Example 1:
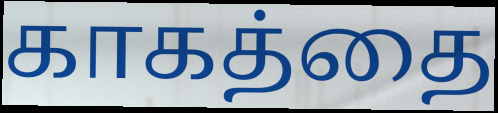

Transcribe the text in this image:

காகத்தை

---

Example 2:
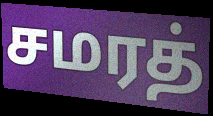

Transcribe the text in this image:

சமரத்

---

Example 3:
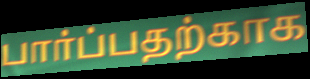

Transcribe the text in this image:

பார்ப்பதற்காக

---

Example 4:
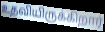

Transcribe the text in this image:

உதவியிருக்கிறார்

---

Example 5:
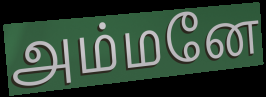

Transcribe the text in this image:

அம்மனே